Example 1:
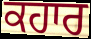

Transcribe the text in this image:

ਕਹਾਰ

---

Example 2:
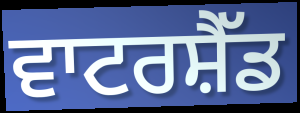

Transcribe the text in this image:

ਵਾਟਰਸ਼ੈੱਡ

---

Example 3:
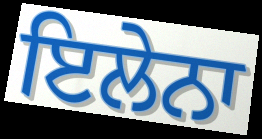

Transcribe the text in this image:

ਇਲੇਨਾ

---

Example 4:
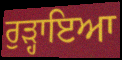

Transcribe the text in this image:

ਰੁੜ੍ਹਾਇਆ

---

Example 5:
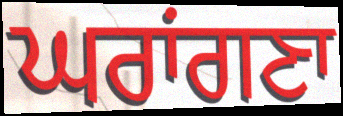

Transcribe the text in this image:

ਘਰਾਂਗਣਾ